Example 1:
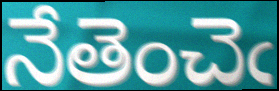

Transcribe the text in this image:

నేతెంచెఁ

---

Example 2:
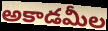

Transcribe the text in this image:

అకాడమీల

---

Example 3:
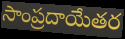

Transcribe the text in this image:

సాంప్రదాయేతర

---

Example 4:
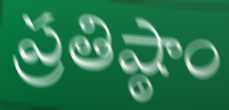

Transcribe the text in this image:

ప్రతిష్ఠాం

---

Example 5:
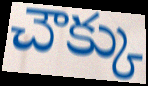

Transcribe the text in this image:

చౌక్కు